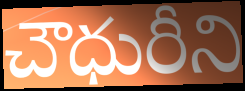
చౌధురీని